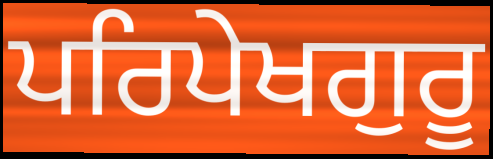
ਪਰਿਪੇਖਗੁਰੂ